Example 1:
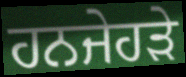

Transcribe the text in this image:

ਹਨਜੇਹੜੇ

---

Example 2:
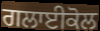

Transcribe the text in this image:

ਗਲਾਈਕੋਲ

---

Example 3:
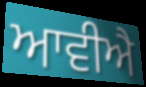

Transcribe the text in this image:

ਆਵੀਐ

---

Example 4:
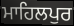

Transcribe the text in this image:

ਮਾਹਿਲਪੁਰ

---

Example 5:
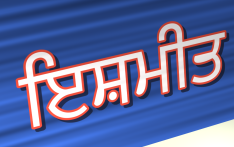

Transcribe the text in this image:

ਇਸ਼ਮੀਤ